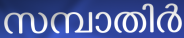
സമ്പാതിർ